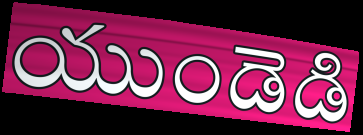
యుండెడి